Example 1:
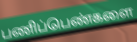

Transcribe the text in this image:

பணிப்பெண்களை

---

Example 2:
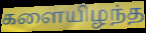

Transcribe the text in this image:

களையிழந்த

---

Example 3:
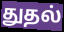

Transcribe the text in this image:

துதல்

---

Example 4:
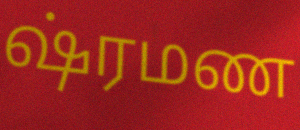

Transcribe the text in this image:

ஷ்ரமண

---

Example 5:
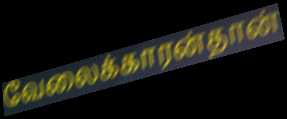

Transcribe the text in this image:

வேலைக்காரன்தான்